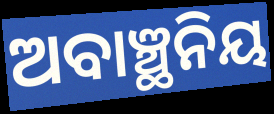
ଅବାଞ୍ଛନିୟ